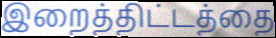
இறைத்திட்டத்தை